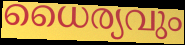
ധൈര്യവും